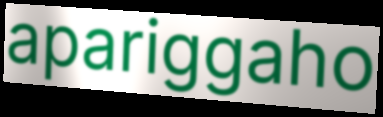
apariggaho